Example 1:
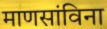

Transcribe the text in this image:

माणसांविना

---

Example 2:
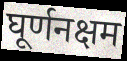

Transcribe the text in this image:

घूर्णनक्षम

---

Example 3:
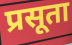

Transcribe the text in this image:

प्रसूता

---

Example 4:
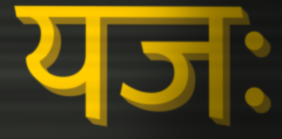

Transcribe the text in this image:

यजः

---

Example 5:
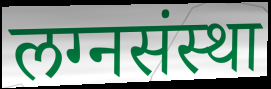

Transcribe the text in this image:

लग्नसंस्था